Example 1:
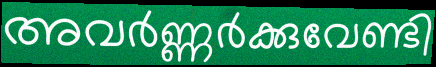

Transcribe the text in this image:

അവർണ്ണർക്കുവേണ്ടി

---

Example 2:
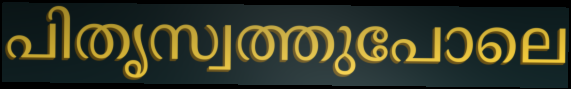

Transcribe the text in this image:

പിതൃസ്വത്തുപോലെ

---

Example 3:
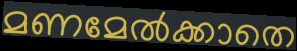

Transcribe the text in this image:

മണമേൽക്കാതെ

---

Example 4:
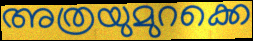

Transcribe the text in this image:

അത്രയുമുറക്കെ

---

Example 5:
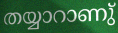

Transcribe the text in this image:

തയ്യാറാണു്